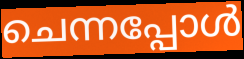
ചെന്നപ്പോൾ